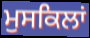
ਮੁਸਕਿਲਾਂ